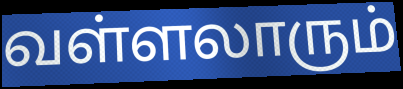
வள்ளலாரும்